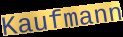
Kaufmann